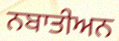
ਨਬਾਤੀਅਨ